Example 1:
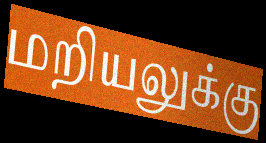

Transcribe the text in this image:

மறியலுக்கு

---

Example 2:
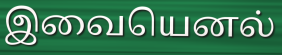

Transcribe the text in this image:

இவையெனல்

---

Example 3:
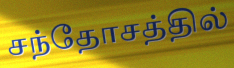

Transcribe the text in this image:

சந்தோசத்தில்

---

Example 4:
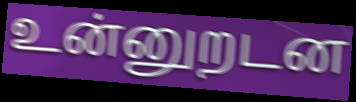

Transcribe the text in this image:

உன்னுறடன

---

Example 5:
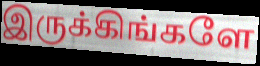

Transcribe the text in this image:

இருக்கிங்களே